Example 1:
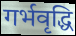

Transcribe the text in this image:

गर्भवृद्धि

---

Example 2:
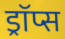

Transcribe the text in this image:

ड्रॉप्स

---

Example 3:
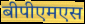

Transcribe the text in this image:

बीपीएमएस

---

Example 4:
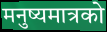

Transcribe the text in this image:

मनुष्यमात्रको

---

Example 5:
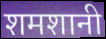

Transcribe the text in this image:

शमशानी